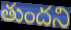
తుందని